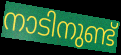
നാടിനുണ്ട്